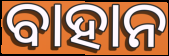
ବାହାନ